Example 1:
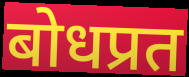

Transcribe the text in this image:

बोधप्रत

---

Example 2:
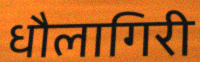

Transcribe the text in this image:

धौलागिरी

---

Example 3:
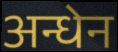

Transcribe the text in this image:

अन्धेन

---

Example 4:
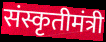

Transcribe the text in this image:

संस्कृतीमंत्री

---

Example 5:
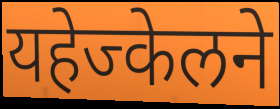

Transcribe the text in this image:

यहेज्केलने